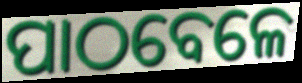
ପାଠବେଳେ